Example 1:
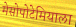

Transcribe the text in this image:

मेसोपोटेमियाला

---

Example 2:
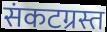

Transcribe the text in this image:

संकटग्रस्त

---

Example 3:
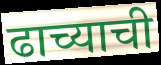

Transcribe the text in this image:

ढाच्याची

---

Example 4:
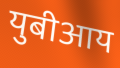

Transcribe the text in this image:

युबीआय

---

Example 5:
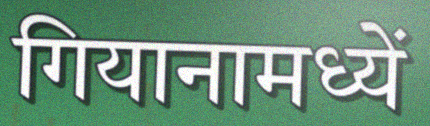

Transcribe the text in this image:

गियानामध्यें